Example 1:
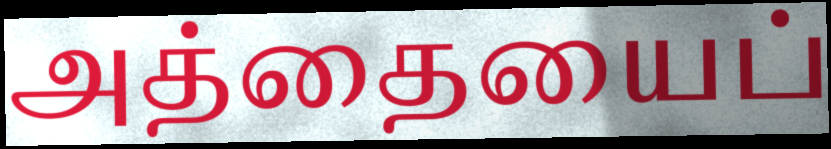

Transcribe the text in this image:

அத்தையைப்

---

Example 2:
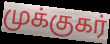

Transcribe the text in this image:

முக்குகர்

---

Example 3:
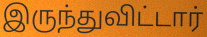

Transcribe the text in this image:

இருந்துவிட்டார்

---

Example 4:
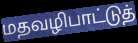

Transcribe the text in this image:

மதவழிபாட்டுத்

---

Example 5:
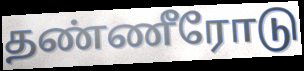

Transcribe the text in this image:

தண்ணீரோடு